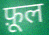
फ़ूल